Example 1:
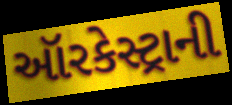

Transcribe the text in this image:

ઑરકેસ્ટ્રાની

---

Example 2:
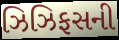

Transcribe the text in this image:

ઝિઝિફસની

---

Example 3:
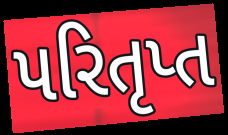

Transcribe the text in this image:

પરિતૃપ્ત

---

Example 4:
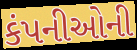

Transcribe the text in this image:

કંપનીઓની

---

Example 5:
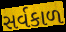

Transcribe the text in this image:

સર્વકાળ